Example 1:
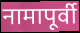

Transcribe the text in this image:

नामापूर्वी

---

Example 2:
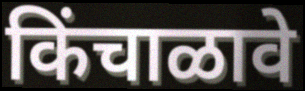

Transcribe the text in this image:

किंचाळावे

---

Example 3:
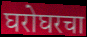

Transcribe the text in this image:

घरोघरचा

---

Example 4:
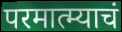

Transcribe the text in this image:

परमात्म्याचं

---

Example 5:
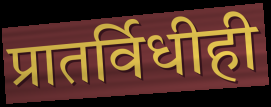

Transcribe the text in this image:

प्रातर्विधीही